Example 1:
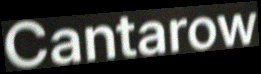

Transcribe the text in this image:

Cantarow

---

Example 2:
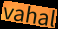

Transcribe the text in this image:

vahal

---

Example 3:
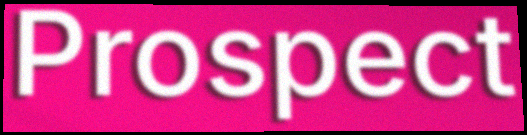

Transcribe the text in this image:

Prospect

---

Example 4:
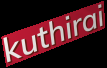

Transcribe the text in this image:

kuthirai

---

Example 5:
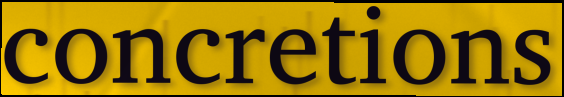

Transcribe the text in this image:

concretions